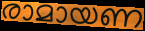
രാമായണ